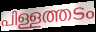
പിള്ളത്തടം